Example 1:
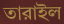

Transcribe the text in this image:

তারাইল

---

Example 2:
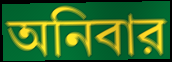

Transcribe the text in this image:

অনিবার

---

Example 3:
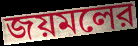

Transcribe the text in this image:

জয়মলের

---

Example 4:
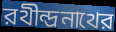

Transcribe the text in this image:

রথীন্দ্রনাথের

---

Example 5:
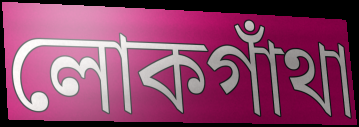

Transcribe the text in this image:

লোকগাঁথা